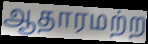
ஆதாரமற்ற